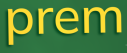
prem